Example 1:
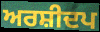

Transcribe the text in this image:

ਅਰਸ਼ੀਦਪ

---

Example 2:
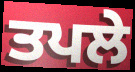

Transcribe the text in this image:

ਤਪਲੇ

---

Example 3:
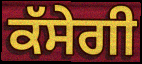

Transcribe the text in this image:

ਕੱਸੇਗੀ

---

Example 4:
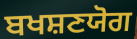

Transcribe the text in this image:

ਬਖਸ਼ਣਯੋਗ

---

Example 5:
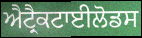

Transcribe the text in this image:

ਐਟ੍ਰੈਕਟਾਈਲੋਡਸ